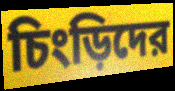
চিংড়িদের